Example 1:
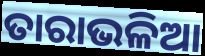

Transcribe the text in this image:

ତାରାଭଳିଆ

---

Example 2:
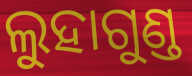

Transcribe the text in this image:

ଲୁହାଗୁଣ୍ଡ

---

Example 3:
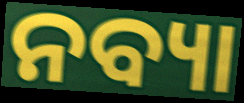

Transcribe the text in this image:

ନବ୍ୟା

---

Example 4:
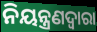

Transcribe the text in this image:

ନିୟନ୍ତ୍ରଣଦ୍ବାରା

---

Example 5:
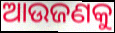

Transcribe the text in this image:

ଆଉଜଣକୁ